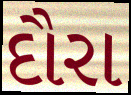
દૌરા